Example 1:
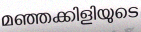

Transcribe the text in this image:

മഞ്ഞക്കിളിയുടെ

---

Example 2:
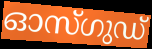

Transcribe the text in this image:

ഓസ്ഗുഡ്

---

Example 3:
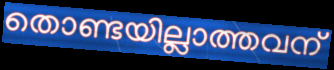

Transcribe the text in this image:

തൊണ്ടയില്ലാത്തവന്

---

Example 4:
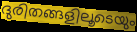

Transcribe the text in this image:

ദുരിതങ്ങളിലൂടെയും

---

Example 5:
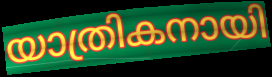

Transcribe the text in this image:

യാത്രികനായി